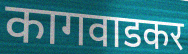
कागवाडकर